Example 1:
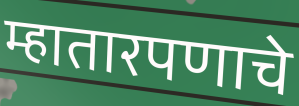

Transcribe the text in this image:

म्हातारपणाचे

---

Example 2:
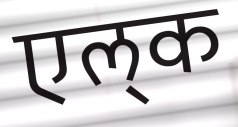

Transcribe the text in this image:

एल्क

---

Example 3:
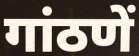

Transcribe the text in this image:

गांठणें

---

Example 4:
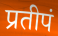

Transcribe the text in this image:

प्रतीपं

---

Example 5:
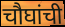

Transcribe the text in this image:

चौघांची